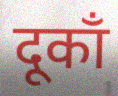
दूकाँ